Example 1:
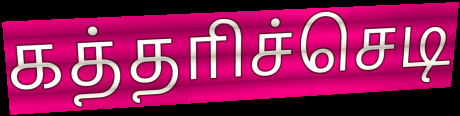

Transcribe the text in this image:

கத்தரிச்செடி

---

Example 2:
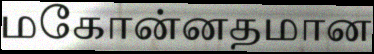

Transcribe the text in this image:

மகோன்னதமான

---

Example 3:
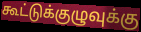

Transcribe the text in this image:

கூட்டுக்குழுவுக்கு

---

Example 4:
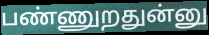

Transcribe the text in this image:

பண்ணுறதுன்னு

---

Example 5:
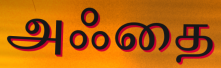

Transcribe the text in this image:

அஃதை